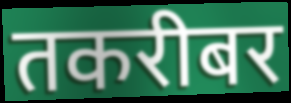
तकरीबर